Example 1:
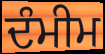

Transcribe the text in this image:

ਦੰਮੀਮ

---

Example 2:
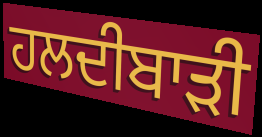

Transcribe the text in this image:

ਹਲਦੀਬਾੜੀ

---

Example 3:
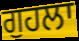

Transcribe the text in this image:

ਗੁਹਲਾ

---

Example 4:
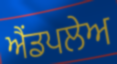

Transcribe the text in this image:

ਐਂਡਪਲੇਅ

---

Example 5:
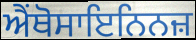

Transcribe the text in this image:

ਐਂਥੋਸਾਇਨਿਨਜ਼